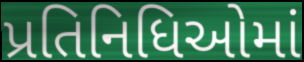
પ્રતિનિધિઓમાં